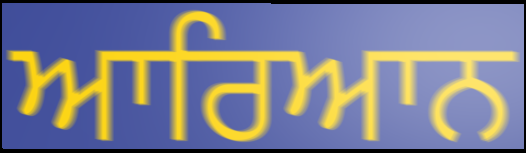
ਆਰਿਆਨ